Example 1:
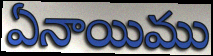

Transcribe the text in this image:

ఏనాయిము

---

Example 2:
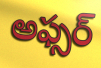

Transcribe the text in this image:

అఫ్సర్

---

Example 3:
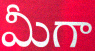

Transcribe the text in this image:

మీగా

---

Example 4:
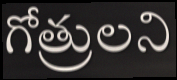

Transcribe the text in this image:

గోత్రులని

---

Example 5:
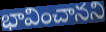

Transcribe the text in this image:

భావించానని